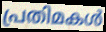
പ്രതിമകൾ